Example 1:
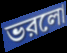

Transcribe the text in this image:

ভরলো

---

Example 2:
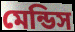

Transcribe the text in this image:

মেন্ডিস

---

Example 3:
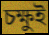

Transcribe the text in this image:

চক্ষুই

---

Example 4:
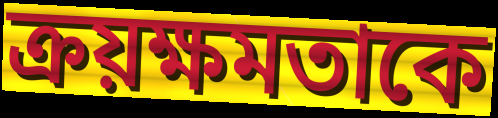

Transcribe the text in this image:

ক্রয়ক্ষমতাকে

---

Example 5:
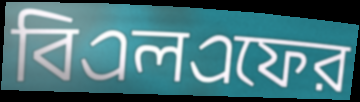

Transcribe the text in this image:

বিএলএফের